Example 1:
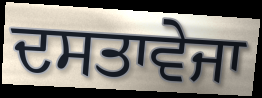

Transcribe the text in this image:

ਦਸਤਾਵੇਜਾ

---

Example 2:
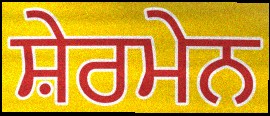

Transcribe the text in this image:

ਸ਼ੇਰਮੇਨ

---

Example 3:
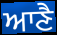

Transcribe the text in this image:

ਆਣੈ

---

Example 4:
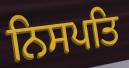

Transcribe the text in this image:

ਨਿਸਪਤਿ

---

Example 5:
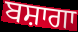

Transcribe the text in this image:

ਬਸ਼ਾਗਾ